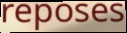
reposes